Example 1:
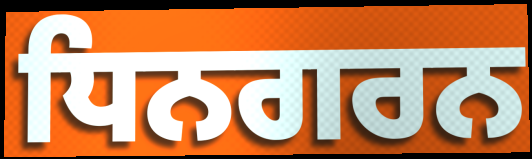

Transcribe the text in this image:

ਧਿਨਗਰਨ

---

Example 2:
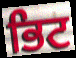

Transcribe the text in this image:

ਭਿਟ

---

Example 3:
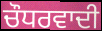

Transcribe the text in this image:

ਚੌਧਰਵਾਦੀ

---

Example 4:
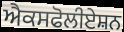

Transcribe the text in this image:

ਐਕਸਫੋਲੀਏਸ਼ਨ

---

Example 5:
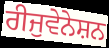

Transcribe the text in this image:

ਰੀਜੁਵੇਨੇਸ਼ਨ